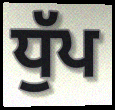
ਧੁੱਪ